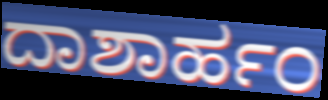
ದಾಶಾರ್ಹಂ